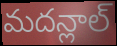
మదన్లాల్